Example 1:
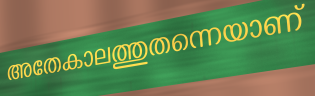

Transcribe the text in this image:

അതേകാലത്തുതന്നെയാണ്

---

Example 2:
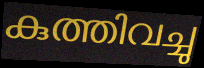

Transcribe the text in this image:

കുത്തിവച്ചു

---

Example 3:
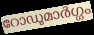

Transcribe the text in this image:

റോഡുമാർഗ്ഗം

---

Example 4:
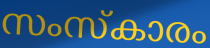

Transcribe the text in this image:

സംസ്‌കാരം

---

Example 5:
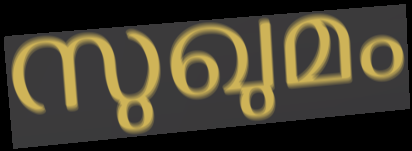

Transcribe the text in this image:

സുഖുമം